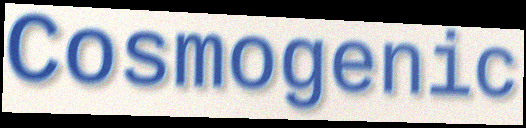
Cosmogenic